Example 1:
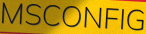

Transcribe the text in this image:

MSCONFIG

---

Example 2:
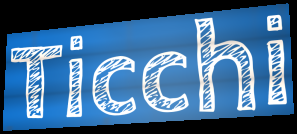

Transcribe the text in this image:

Ticchi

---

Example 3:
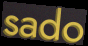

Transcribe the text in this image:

sado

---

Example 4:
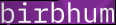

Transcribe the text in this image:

birbhum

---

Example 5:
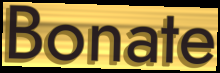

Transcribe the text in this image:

Bonate